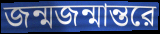
জন্মজন্মান্তরে